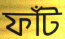
ফাঁট